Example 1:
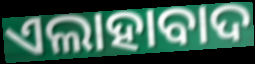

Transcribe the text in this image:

ଏଲାହାବାଦ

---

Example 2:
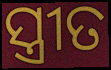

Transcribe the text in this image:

ସ୍ତ୍ରୀତ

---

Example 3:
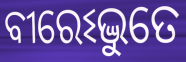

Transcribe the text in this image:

ବୀରେଽଦ୍ଭୁତେ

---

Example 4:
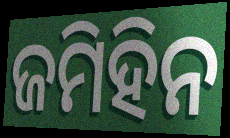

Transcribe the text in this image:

ଜମିହିନ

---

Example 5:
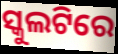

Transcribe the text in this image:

ସ୍କୁଲଟିରେ